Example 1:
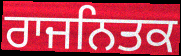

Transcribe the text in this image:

ਰਾਜਨਿਤਕ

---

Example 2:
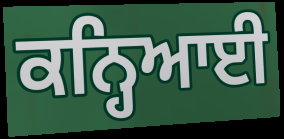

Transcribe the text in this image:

ਕਨ੍ਹਿਆਈ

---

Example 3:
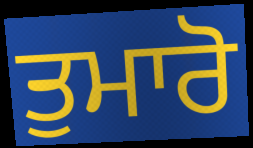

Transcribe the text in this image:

ਤੁਮਾਰੋ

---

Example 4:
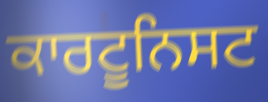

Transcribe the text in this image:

ਕਾਰਟੂਨਿਸਟ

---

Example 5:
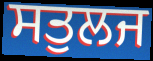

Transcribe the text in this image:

ਸਤੁਲਜ